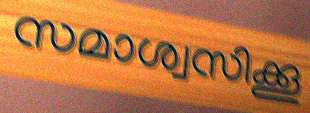
സമാശ്വസിക്കൂ